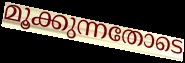
മൂക്കുന്നതോടെ